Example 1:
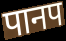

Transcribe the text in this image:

पानप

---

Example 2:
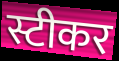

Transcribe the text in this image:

स्टीकर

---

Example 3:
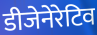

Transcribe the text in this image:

डीजेनेरेटिव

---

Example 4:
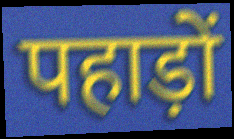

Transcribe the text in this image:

पहाड़ों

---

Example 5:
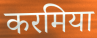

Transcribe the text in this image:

करमिया